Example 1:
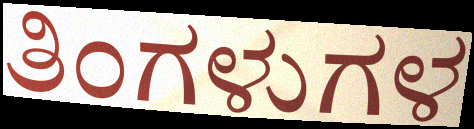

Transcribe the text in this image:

ತಿಂಗಳುಗಳ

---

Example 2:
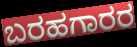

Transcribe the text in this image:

ಬರಹಗಾರರ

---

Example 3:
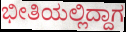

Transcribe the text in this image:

ಭೀತಿಯಲ್ಲಿದ್ದಾಗ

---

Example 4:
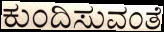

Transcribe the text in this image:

ಕುಂದಿಸುವಂತೆ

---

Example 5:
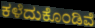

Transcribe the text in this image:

ಕಳೆದುಕೊಂಡಿವೆ